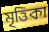
মৃত্তিকা